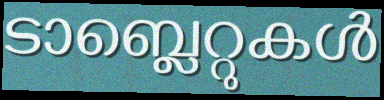
ടാബ്ലെറ്റുകൾ